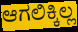
ಆಗಲಿಕ್ಕಿಲ್ಲ